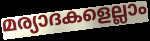
മര്യാദകളെല്ലാം